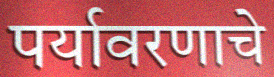
पर्यावरणाचे